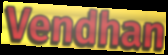
Vendhan